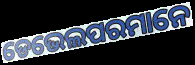
ଡେଭେଲପରମାନେ